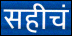
सहीचं